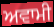
ਅਵਾਮੀ